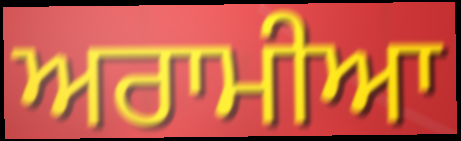
ਅਰਾਮੀਆ